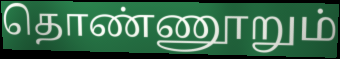
தொண்ணூறும்